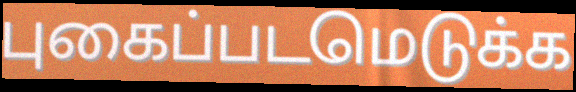
புகைப்படமெடுக்க